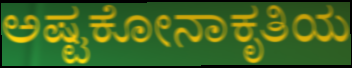
ಅಷ್ಟಕೋನಾಕೃತಿಯ